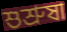
শুশ্রুষা